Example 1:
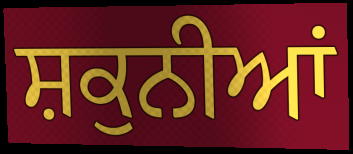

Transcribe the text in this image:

ਸ਼ਕੁਨੀਆਂ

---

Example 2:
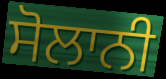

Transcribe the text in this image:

ਸੋਲਾਨੀ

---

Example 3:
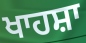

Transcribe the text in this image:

ਖਾਹਸ਼ਾ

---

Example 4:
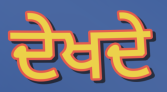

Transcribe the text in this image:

ਦੇਖਦੇ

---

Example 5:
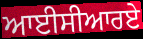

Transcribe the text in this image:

ਆਈਸੀਆਰਏ